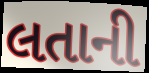
લતાની